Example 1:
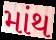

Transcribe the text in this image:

માંથ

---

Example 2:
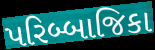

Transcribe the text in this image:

પરિબ્બાજિકા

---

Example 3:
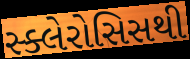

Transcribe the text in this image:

સ્ક્લેરોસિસથી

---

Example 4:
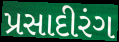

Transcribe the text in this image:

પ્રસાદીરંગ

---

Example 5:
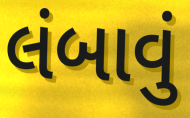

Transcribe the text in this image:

લંબાવું